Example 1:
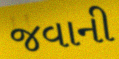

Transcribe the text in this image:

જવાની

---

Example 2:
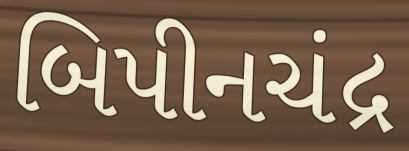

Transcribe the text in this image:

બિપીનચંદ્ર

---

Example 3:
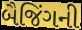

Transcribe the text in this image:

બૈજિંગની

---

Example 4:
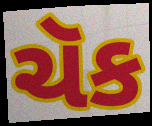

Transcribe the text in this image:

ચૅક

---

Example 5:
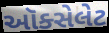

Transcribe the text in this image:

ઑક્સેલેટ